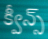
క్వీన్స్